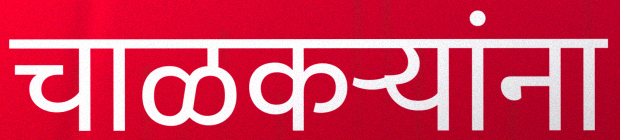
चाळकऱ्यांना